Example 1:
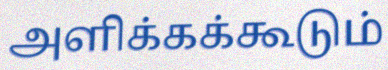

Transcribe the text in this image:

அளிக்கக்கூடும்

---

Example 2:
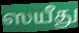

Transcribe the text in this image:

ஸயீது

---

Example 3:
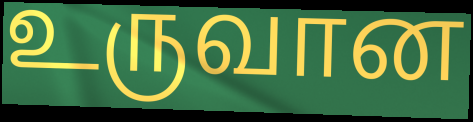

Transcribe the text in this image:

உருவான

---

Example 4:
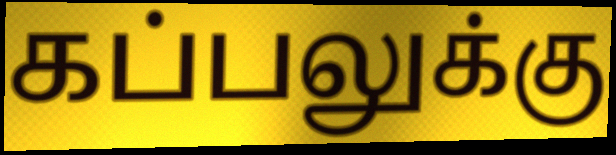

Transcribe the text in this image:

கப்பலுக்கு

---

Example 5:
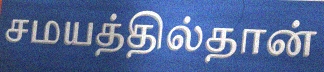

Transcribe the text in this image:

சமயத்தில்தான்